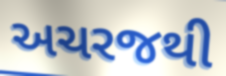
અચરજથી